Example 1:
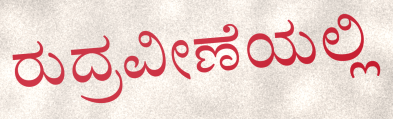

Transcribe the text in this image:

ರುದ್ರವೀಣೆಯಲ್ಲಿ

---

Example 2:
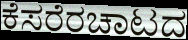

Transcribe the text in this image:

ಕೆಸರೆರಚಾಟದ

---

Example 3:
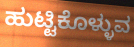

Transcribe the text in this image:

ಹುಟ್ಟಿಕೊಳ್ಳುವ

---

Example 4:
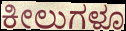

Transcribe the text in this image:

ಕೀಲುಗಳೂ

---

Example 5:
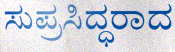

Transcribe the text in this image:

ಸುಪ್ರಸಿದ್ಧರಾದ